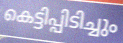
കെട്ടിപ്പിടിച്ചും